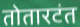
तोतारटंत